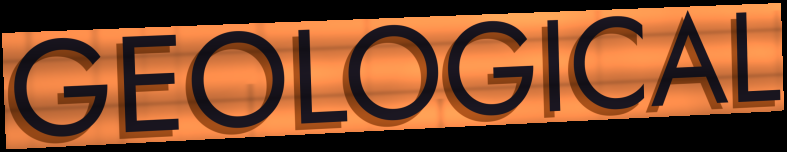
GEOLOGICAL